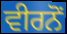
ਵੀਰਨੋਂ